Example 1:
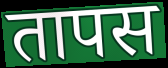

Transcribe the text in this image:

तापस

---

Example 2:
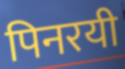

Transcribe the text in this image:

पिनरयी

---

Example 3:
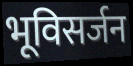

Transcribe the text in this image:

भूविसर्जन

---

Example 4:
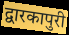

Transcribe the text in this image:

द्वारकापुरी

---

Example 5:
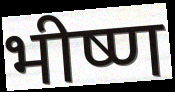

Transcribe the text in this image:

भीष्ण